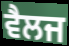
ਵੈਲਜ